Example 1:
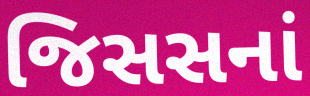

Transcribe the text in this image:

જિસસનાં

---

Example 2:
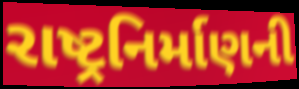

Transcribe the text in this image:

રાષ્ટ્રનિર્માણની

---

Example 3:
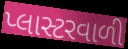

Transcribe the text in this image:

પ્લાસ્ટરવાળી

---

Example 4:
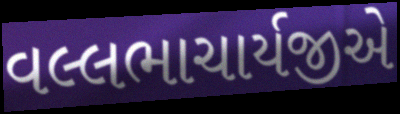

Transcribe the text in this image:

વલ્લભાચાર્યજીએ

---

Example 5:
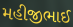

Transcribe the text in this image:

મહીજીભાઈ